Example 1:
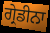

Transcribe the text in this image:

ਗ੍ਰੇਡੀਨਾ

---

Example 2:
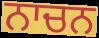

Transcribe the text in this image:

ਨਾਚਨ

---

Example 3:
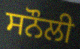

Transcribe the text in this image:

ਸਨੌਲੀ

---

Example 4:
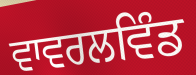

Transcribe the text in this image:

ਵਾਵਰਲਵਿੰਡ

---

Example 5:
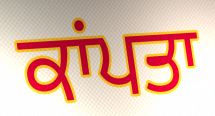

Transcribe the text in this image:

ਕਾਂਪਤਾ